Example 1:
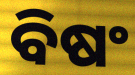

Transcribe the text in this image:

ବିଷଂ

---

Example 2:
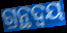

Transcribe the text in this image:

ଗ୍ରନ୍ଥଦ୍ଵୟ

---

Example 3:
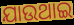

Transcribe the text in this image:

ଯାଉଥାଇ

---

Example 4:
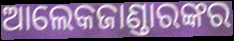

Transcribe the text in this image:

ଆଲେକଜାଣ୍ଡାରଙ୍କର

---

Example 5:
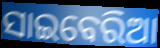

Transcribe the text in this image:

ସାଇବେରିଆ